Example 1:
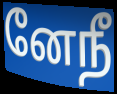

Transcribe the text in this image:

னேநீ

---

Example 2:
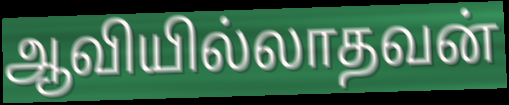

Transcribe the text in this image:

ஆவியில்லாதவன்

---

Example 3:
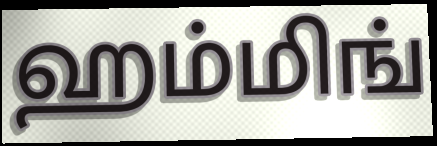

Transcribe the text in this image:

ஹம்மிங்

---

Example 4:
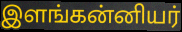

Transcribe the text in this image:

இளங்கன்னியர்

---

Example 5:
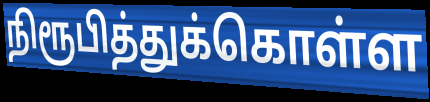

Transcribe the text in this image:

நிரூபித்துக்கொள்ள